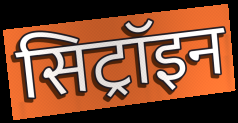
सिट्रॉइन